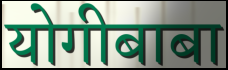
योगीबाबा